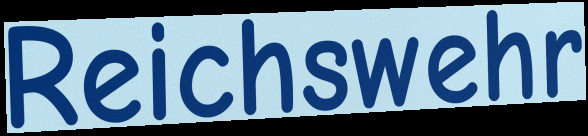
Reichswehr